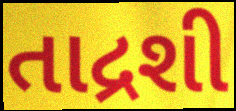
તાદ્રશી